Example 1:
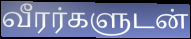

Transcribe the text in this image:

வீரர்களுடன்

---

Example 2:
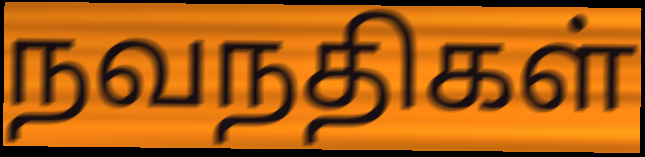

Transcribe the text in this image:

நவநதிகள்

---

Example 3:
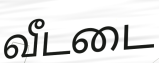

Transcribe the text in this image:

வீடடை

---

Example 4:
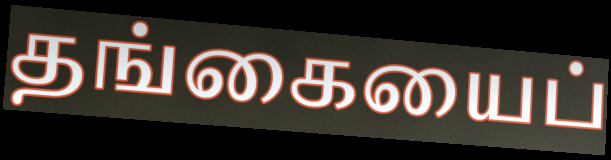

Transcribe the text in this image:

தங்கையைப்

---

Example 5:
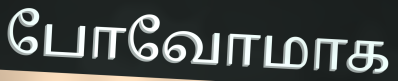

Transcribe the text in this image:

போவோமாக